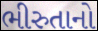
ભીરુતાનો